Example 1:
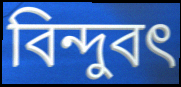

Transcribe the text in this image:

বিন্দুবৎ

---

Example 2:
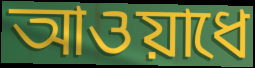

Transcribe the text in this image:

আওয়াধে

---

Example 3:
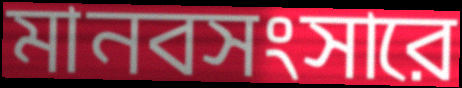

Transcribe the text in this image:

মানবসংসারে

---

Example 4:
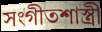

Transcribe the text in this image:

সংগীতশাস্ত্রী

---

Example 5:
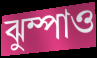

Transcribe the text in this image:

ঝুম্পাও